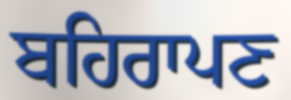
ਬਹਿਰਾਪਣ